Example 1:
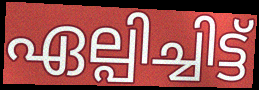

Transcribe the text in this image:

ഏല്പിച്ചിട്ട്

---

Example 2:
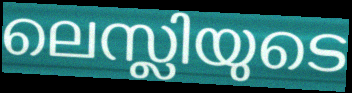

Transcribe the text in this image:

ലെസ്ലിയുടെ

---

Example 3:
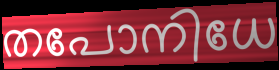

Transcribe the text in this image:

തപോനിധേ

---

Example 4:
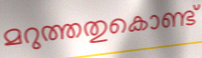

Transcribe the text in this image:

മറുത്തതുകൊണ്ട്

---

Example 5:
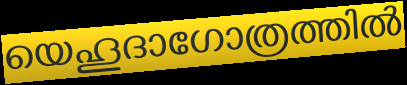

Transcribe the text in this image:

യെഹൂദാഗോത്രത്തിൽ